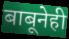
बाबूनेही